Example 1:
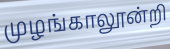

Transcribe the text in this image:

முழங்காலூன்றி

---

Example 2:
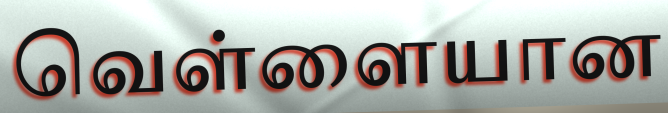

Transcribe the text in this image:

வெள்ளையான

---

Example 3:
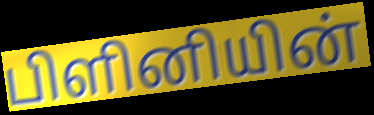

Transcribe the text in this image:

பிளினியின்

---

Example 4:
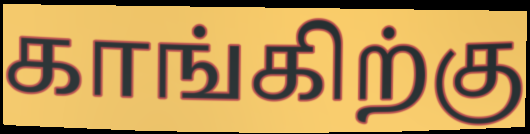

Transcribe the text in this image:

காங்கிற்கு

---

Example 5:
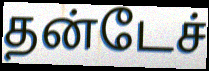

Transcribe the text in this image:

தன்டேச்